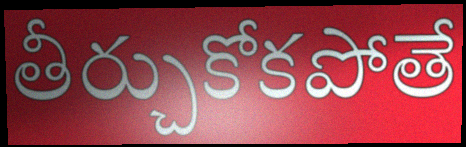
తీర్చుకోకపోతే